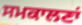
ਸਮਕਾਲਣਾਂ